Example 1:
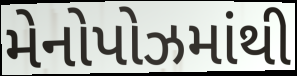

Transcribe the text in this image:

મેનોપોઝમાંથી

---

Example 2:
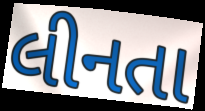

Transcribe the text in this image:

લીનતા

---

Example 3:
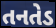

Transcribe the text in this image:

તનતેડ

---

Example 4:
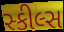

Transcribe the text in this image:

સ્કીલ્સ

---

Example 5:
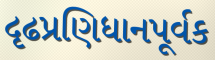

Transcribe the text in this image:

દૃઢપ્રણિધાનપૂર્વક